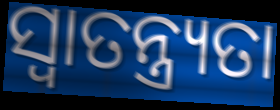
ସ୍ୱାତନ୍ତ୍ର୍ୟତା